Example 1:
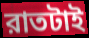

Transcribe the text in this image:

রাতটাই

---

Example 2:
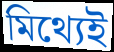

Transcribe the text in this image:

মিথ্যেই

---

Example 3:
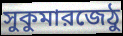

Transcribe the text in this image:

সুকুমারজেঠু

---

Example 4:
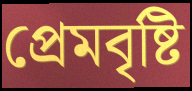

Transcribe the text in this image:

প্রেমবৃষ্টি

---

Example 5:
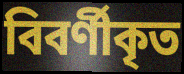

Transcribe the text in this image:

বিবর্ণীকৃত